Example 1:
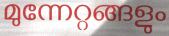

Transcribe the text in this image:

മുന്നേറ്റങ്ങളും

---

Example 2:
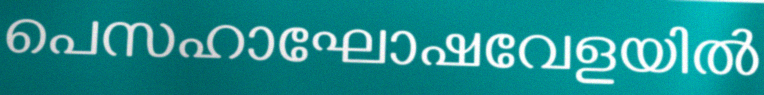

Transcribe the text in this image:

പെസഹാഘോഷവേളയിൽ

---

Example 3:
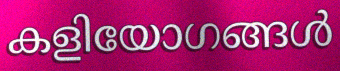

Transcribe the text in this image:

കളിയോഗങ്ങൾ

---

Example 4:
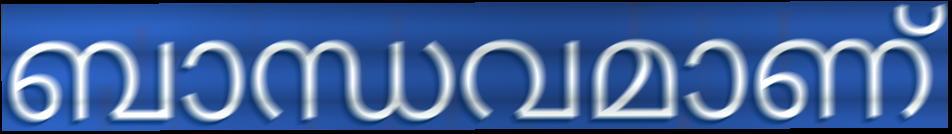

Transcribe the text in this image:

ബാന്ധവമാണ്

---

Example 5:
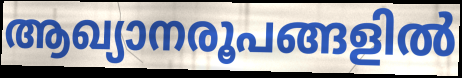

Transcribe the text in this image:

ആഖ്യാനരൂപങ്ങളിൽ